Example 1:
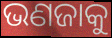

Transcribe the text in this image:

ଭଣଜାକୁ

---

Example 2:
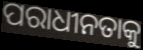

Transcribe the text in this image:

ପରାଧୀନତାକୁ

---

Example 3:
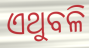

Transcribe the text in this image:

ଏଥୁବଳି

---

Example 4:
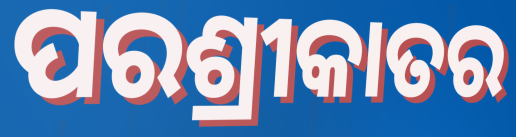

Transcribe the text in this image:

ପରଶ୍ରୀକାତର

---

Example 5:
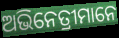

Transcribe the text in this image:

ଅଭିନେତ୍ରୀମାନେ